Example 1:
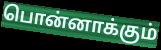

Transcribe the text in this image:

பொன்னாக்கும்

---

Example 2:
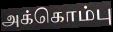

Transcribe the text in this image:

அக்கொம்பு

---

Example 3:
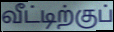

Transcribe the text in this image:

வீட்டிற்குப்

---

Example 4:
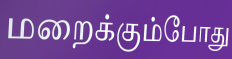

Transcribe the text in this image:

மறைக்கும்போது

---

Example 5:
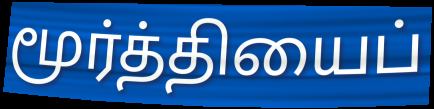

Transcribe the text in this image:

மூர்த்தியைப்